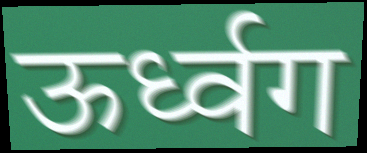
ऊर्ध्वग